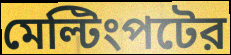
মেল্টিংপটের